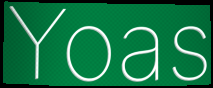
Yoas